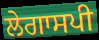
ਲੇਗਾਸਪੀ